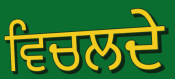
ਵਿਚਲਦੇ